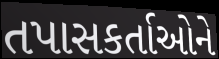
તપાસકર્તાઓને